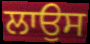
ਲਾਉਸ